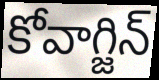
కోవాగ్జిన్